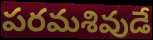
పరమశివుడే